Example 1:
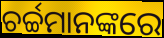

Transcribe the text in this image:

ଚର୍ଚ୍ଚମାନଙ୍କରେ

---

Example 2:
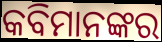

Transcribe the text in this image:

କବିମାନଙ୍କର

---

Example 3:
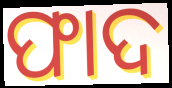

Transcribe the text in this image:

ଫାଦ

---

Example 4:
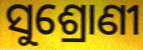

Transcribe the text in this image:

ସୁଶ୍ରୋଣୀ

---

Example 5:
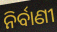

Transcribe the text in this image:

ନିର୍ବାଣୀ